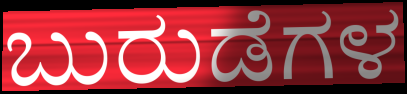
ಬುರುಡೆಗಳ